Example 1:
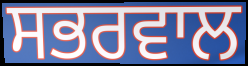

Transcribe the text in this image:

ਸਭਰਵਾਲ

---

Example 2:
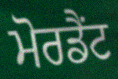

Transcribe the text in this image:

ਮੋਰਡੈਂਟ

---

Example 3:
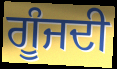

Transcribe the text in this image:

ਗੂੰਜਦੀ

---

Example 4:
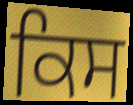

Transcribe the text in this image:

ਕਿਸ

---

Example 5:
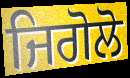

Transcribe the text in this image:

ਜਿਗੋਲੋ